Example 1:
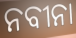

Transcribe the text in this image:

ନବୀନା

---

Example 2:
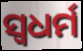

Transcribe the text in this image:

ସ୍ଵଧର୍ମ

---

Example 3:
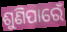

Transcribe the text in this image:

ଶୁଣିପାରେଁ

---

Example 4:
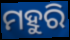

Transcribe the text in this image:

ମହୁରି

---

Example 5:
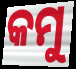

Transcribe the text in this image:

କମୁ